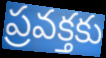
ప్రవక్తకు